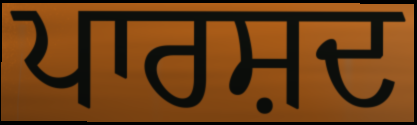
ਪਾਰਸ਼ਦ